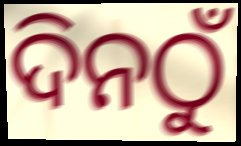
ଦିନଠୁଁ